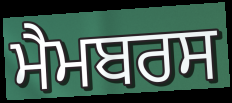
ਮੈਮਬਰਸ